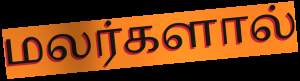
மலர்களால்